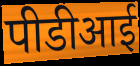
पीडीआई